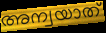
അന്വയാത്